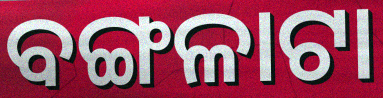
ବଙ୍ଗଳାଟା